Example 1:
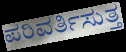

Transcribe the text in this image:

ಪರಿವರ್ತಿಸುತ್ತ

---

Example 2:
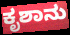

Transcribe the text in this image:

ಕೃಶಾನು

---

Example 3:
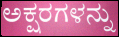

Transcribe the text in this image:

ಅಕ್ಷರಗಳನ್ನು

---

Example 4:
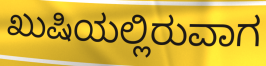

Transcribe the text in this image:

ಖುಷಿಯಲ್ಲಿರುವಾಗ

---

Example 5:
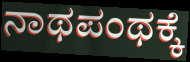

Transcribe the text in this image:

ನಾಥಪಂಥಕ್ಕೆ